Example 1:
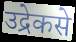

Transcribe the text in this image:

उद्रेकसे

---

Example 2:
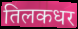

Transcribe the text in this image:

तिलकधर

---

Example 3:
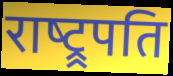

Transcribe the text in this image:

राष्ट्र्रपति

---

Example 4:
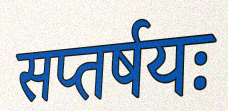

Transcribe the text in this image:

सप्तर्षयः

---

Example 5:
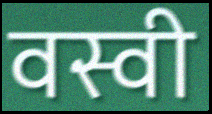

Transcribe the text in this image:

वस्वी